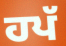
ਹਪੱ